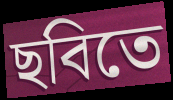
ছবিতে